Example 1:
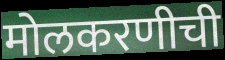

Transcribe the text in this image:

मोलकरणीची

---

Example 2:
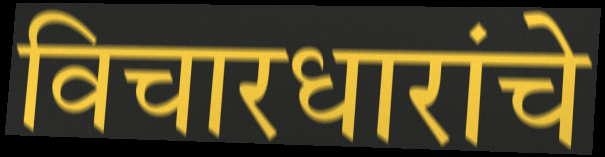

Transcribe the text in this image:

विचारधारांचे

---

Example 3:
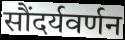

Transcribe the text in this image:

सौंदर्यवर्णन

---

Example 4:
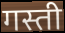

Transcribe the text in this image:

गस्ती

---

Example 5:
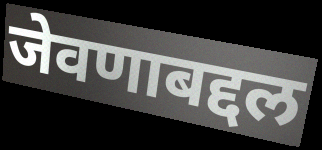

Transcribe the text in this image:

जेवणाबद्दल